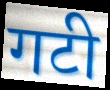
गटी